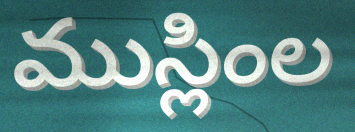
ముస్లింల